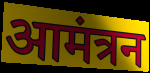
आमंत्रन